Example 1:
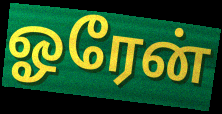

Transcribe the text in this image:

ஓரேன்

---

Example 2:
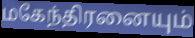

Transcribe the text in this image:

மகேந்திரனையும்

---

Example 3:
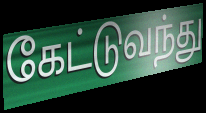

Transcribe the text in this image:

கேட்டுவந்து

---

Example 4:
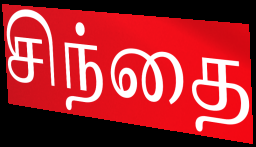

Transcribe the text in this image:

சிந்தை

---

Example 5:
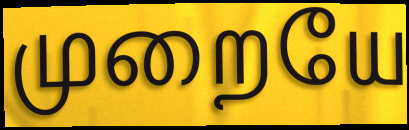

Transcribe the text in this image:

முறையே